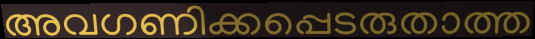
അവഗണിക്കപ്പെടരുതാത്ത